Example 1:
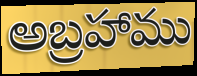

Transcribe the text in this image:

అబ్రహాము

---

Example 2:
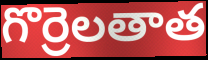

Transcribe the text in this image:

గొర్రెలతాత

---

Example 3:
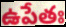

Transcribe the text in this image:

ఉపేతః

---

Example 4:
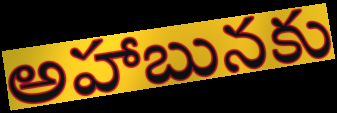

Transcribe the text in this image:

అహాబునకు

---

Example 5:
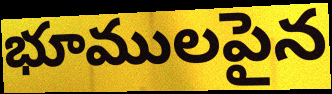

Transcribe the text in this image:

భూములపైన